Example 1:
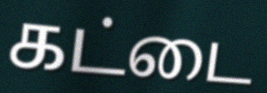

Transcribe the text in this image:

கட்டை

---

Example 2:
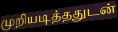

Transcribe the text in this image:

முறியடித்ததுடன்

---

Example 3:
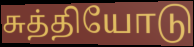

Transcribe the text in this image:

சுத்தியோடு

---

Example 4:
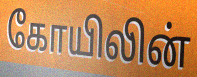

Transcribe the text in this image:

கோயிலின்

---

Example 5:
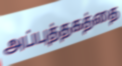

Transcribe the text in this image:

அப்புத்தகத்தை